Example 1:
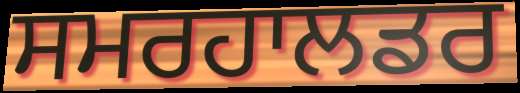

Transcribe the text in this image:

ਸਮਰਹਾਲਡਰ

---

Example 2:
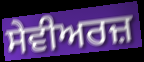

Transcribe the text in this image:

ਸੇਵੀਅਰਜ਼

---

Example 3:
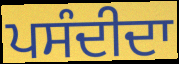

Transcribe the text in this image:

ਪਸੰਦੀਦਾ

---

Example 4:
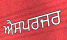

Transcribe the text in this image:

ਐਸਪਰਜਰ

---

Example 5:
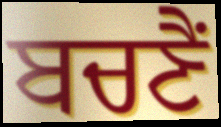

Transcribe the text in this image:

ਬਚਣੈਂ